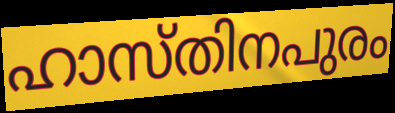
ഹാസ്തിനപുരം